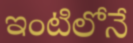
ఇంటిలోనే